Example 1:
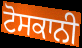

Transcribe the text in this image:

ਟੋਸਕਾਨੀ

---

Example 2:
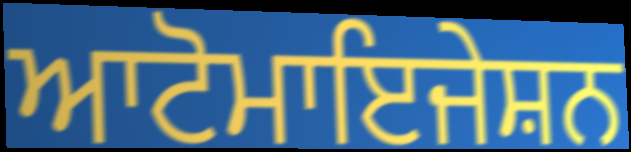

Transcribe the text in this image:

ਆਟੋਮਾਇਜੇਸ਼ਨ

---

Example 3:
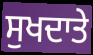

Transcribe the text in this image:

ਸੁਖਦਾਤੇ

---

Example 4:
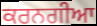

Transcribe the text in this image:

ਕਰਨਗੀਆ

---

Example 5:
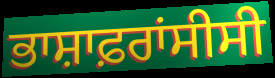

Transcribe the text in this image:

ਭਾਸ਼ਾਫ਼ਰਾਂਸੀਸੀ